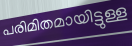
പരിമിതമായിട്ടുള്ള